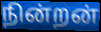
நின்றன்